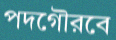
পদগৌরবে